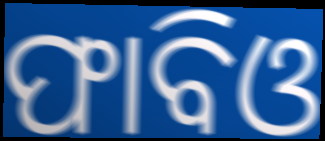
ଫାବିଓ